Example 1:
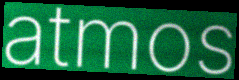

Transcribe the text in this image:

atmos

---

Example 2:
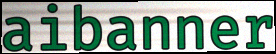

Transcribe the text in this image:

aibanner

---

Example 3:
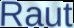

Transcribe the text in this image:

Raut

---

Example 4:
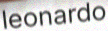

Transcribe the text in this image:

leonardo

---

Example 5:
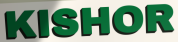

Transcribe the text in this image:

KISHOR